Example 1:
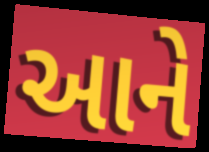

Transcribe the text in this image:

આને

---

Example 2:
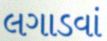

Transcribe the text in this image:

લગાડવાં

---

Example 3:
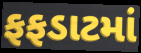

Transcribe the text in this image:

ફફડાટમાં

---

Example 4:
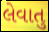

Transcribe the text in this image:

લેવાતુ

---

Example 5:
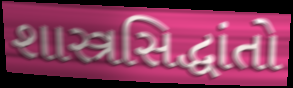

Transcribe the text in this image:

શાસ્ત્રસિદ્ધાંતો